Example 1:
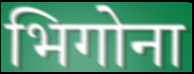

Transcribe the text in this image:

भिगोना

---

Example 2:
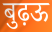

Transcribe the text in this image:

बुढ़ऊ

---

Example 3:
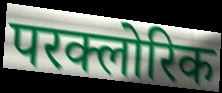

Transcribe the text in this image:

परक्लोरिक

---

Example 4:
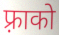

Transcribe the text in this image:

फ़्राको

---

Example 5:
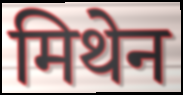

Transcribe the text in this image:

मिथेन